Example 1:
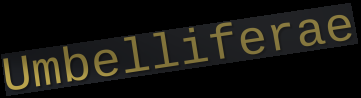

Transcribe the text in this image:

Umbelliferae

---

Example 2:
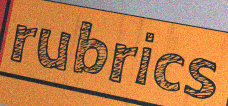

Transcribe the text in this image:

rubrics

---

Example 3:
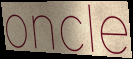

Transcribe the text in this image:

oncle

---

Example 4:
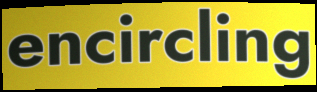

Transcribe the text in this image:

encircling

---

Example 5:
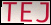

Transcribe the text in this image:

TEJ